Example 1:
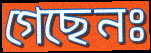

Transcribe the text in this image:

গেছেনঃ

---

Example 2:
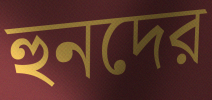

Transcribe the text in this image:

হুনদের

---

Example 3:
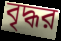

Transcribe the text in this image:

বৃদ্ধর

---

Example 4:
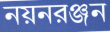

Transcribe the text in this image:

নয়নরঞ্জন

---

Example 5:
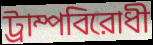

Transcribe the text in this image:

ট্রাম্পবিরোধী